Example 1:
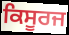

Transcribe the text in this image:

ਕਿਸੂਰਜ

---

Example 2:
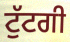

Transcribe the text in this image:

ਟੁੱਟਗੀ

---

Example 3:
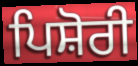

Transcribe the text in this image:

ਪਿਸ਼ੋਰੀ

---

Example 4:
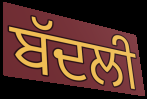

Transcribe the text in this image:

ਬੱਦਲੀ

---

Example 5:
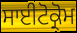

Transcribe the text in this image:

ਸਾਈਟੋਕ੍ਰੋਮ